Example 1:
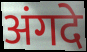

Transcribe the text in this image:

अंगदे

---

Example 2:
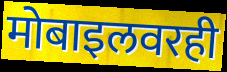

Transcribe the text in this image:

मोबाइलवरही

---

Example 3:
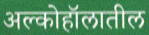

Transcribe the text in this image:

अल्कोहॉलातील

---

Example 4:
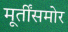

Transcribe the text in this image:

मूर्तींसमोर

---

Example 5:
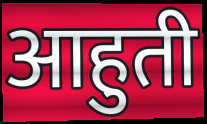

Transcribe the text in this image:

आहुती